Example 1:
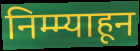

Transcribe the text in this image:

निम्म्याहून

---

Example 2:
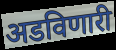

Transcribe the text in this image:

अडविणारी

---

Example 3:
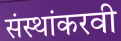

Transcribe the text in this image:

संस्थांकरवी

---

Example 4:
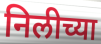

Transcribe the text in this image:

निलीच्या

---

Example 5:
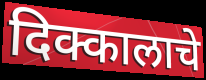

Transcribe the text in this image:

दिक्कालाचे